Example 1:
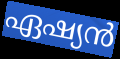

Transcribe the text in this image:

ഏഷ്യൻ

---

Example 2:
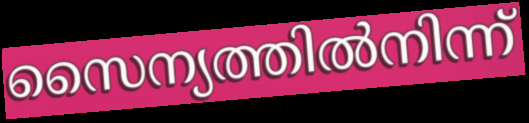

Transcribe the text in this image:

സൈന്യത്തിൽനിന്ന്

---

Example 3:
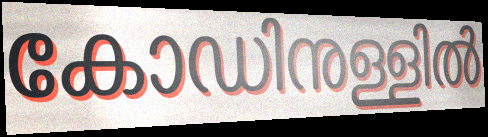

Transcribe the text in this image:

കോഡിനുള്ളിൽ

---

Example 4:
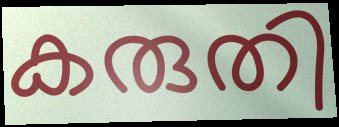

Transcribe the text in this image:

കരുതി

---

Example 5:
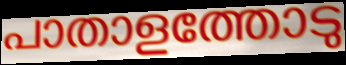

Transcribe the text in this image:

പാതാളത്തോടു